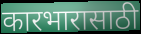
कारभारासाठी